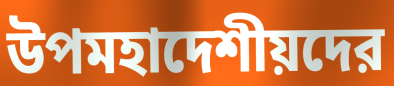
উপমহাদেশীয়দের